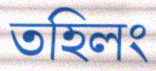
তহিলং